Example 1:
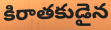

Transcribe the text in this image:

కిరాతకుడైన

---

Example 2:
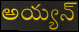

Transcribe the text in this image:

అయ్యన్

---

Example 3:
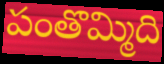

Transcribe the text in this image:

పంతొమ్మిది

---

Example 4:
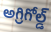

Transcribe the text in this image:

అగ్రిగోల్డ్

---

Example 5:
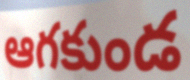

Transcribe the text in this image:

ఆగకుండ